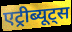
एट्रीब्यूट्स